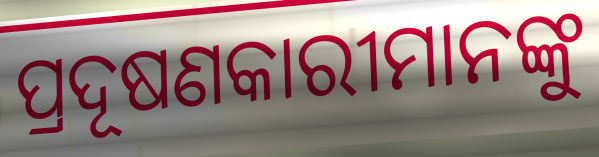
ପ୍ରଦୂଷଣକାରୀମାନଙ୍କୁ